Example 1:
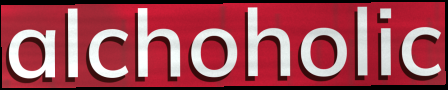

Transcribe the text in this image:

alchoholic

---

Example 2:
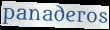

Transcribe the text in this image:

panaderos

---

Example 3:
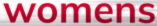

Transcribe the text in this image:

womens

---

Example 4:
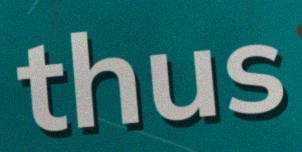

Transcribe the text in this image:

thus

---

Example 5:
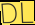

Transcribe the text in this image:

DL